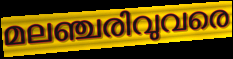
മലഞ്ചരിവുവരെ